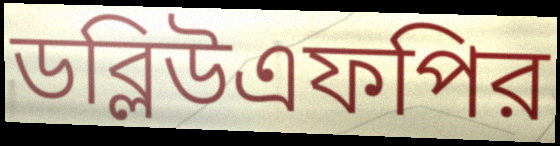
ডব্লিউএফপির